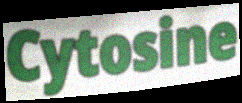
Cytosine